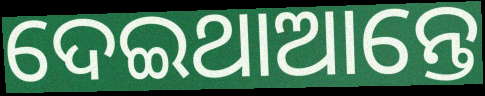
ଦେଇଥାଆନ୍ତେ